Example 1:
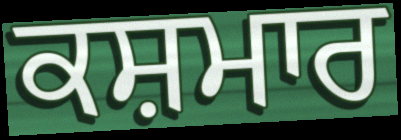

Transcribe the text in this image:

ਕਸ਼ਮਾਰ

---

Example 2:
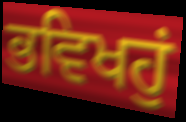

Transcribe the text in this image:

ਭਵਿਖਹੁਂ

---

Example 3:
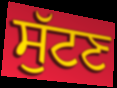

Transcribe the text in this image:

ਸੁੱਟਣ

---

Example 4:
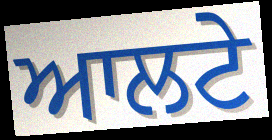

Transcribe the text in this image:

ਆਲਟੇ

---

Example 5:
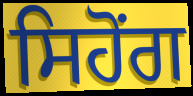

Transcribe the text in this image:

ਸਿਹੋਂਗ